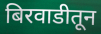
बिरवाडीतून